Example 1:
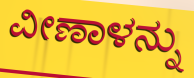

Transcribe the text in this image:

ವೀಣಾಳನ್ನು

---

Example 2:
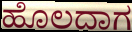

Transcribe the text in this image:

ಹೊಲದಾಗ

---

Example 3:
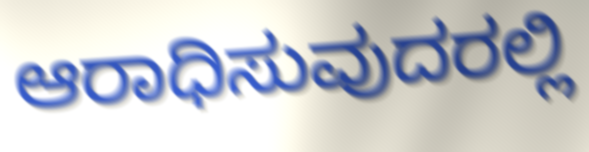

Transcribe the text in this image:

ಆರಾಧಿಸುವುದರಲ್ಲಿ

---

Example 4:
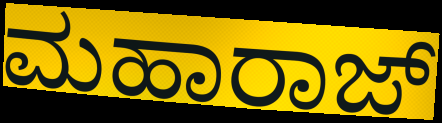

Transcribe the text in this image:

ಮಹಾರಾಜ್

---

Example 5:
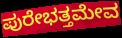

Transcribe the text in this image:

ಪುರೇಭತ್ತಮೇವ